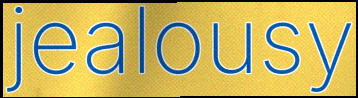
jealousy